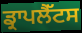
ਡ੍ਰਾਪਲੈੱਟਸ